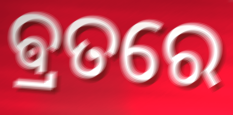
ଵ୍ରତରେ